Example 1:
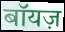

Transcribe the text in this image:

बॉयज़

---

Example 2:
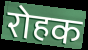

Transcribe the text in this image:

रोहक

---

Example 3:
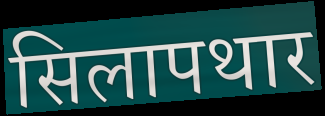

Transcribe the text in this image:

सिलापथार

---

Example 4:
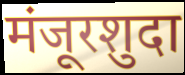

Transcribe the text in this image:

मंजूरशुदा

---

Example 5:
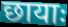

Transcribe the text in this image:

छायाः